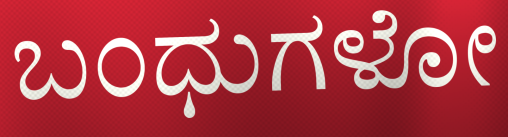
ಬಂಧುಗಳೋ